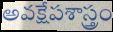
అవక్షేపశాస్త్రం